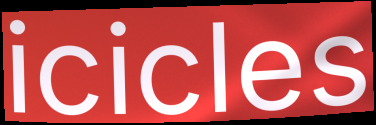
icicles